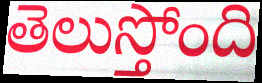
తెలుస్తోంది